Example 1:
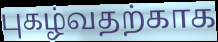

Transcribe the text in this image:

புகழ்வதற்காக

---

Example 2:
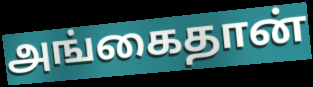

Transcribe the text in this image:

அங்கைதான்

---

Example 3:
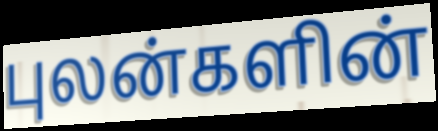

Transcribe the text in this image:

புலன்களின்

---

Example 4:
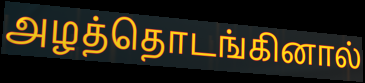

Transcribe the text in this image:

அழத்தொடங்கினால்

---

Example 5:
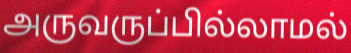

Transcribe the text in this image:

அருவருப்பில்லாமல்